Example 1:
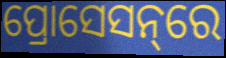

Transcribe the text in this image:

ପ୍ରୋସେସନ୍‌ରେ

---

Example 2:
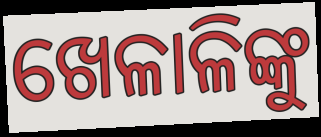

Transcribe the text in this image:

ଖେଳାଳିଙ୍କୁ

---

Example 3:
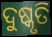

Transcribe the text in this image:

ଦୁଷ୍କୃତି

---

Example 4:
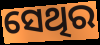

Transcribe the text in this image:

ସେଥିର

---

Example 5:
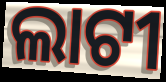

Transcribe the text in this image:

ଲାଟୀ